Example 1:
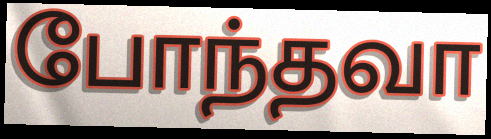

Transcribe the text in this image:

போந்தவா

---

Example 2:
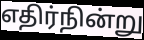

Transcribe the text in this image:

எதிர்நின்று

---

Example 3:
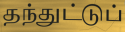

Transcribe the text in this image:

தந்துட்டுப்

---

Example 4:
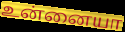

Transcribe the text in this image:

உன்னையா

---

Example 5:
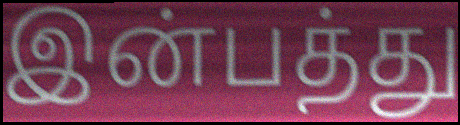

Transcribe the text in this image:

இன்பத்து